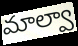
మాల్వా